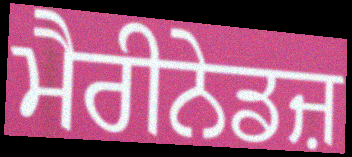
ਮੈਰੀਨੇਡਜ਼